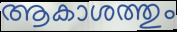
ആകാശത്തും